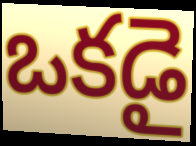
ఒకడై